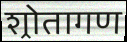
श्रोतागण